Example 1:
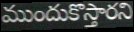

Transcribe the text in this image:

ముందుకొస్తారని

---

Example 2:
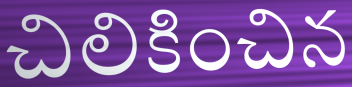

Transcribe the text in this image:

చిలికించిన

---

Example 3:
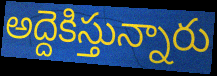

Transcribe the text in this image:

అద్దెకిస్తున్నారు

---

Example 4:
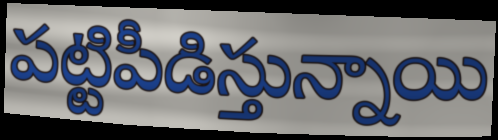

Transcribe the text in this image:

పట్టిపీడిస్తున్నాయి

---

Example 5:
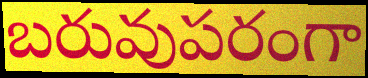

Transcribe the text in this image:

బరువుపరంగా